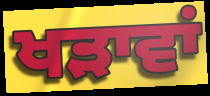
ਖੜਾਵਾਂ